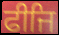
ਫੀਜਿ